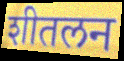
शीतलन